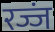
रज्जं